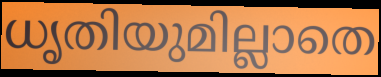
ധൃതിയുമില്ലാതെ